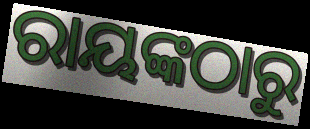
ରାୟଙ୍କଠାରୁ